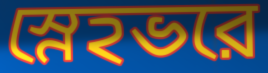
স্নেহভরে